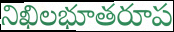
నిఖిలభూతరూప